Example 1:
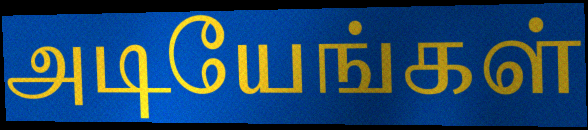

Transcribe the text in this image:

அடியேங்கள்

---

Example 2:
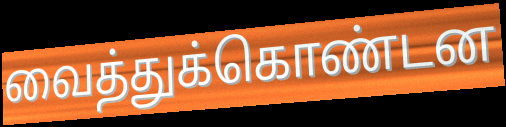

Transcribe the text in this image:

வைத்துக்கொண்டன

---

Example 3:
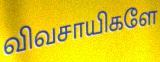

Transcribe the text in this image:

விவசாயிகளே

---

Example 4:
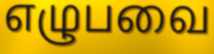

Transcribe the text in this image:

எழுபவை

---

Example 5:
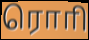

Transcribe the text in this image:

ரொரி